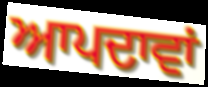
ਆਪਦਾਵਾਂ